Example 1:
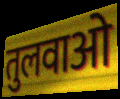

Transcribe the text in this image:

तुलवाओ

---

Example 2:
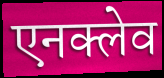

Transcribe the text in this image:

एनक्लेव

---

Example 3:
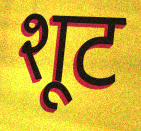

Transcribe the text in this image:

शूट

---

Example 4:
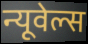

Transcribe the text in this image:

न्यूवेल्स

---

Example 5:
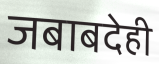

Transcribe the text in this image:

जबाबदेही